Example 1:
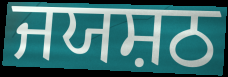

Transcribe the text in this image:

ਜਯਸ਼ਠ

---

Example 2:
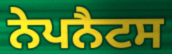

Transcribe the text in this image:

ਨੇਪਨੈਟਸ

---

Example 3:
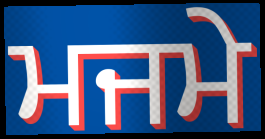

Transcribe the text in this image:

ਮਜਮੇ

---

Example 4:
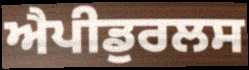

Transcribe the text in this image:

ਐਪੀਡੁਰਲਸ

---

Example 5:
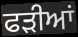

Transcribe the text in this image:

ਫੜੀਆਂ